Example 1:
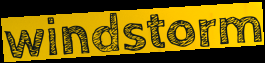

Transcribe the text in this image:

windstorm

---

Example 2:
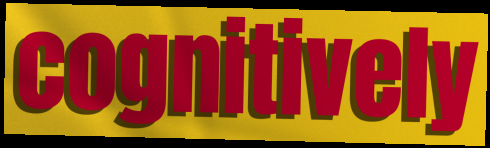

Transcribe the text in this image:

cognitively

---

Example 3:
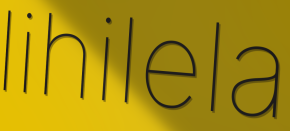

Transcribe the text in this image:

lihilela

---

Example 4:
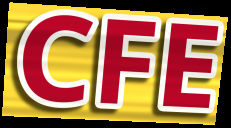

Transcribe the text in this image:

CFE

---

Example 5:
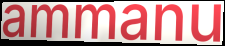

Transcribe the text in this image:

ammanu